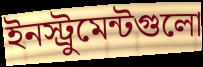
ইনস্ট্রুমেন্টগুলো